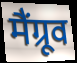
मैंग्रूव